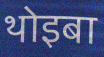
थोइबा